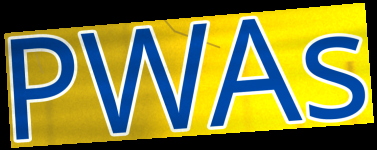
PWAs